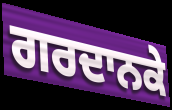
ਗਰਦਾਨਕੇ